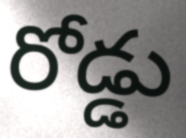
రోడ్డు